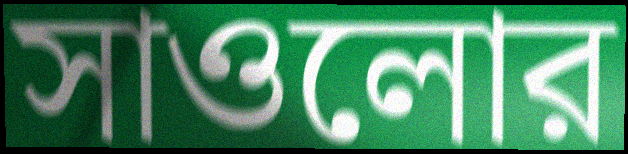
সাওলোর